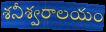
శనీశ్వరాలయం